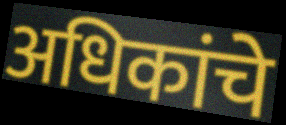
अधिकांचे